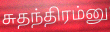
சுதந்திரம்னு